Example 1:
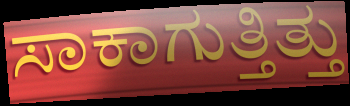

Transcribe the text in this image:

ಸಾಕಾಗುತ್ತಿತ್ತು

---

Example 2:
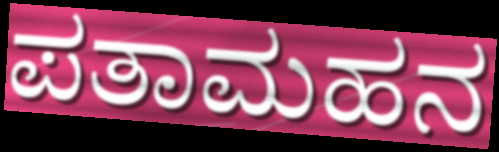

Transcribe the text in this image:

ಪತಾಮಹನ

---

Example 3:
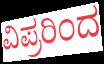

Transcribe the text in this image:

ವಿಪ್ರರಿಂದ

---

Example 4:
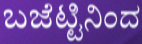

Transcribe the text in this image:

ಬಜೆಟ್ಟಿನಿಂದ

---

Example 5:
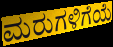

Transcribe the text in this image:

ಮರುಗಳಿಗೆಯೆ